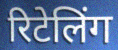
रिटेलिंग